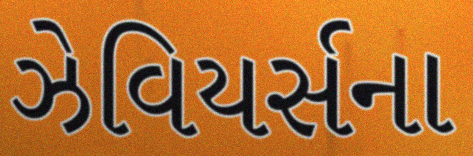
ઝેવિયર્સના